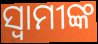
ସ୍ୱାମୀଙ୍କ